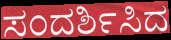
ಸಂದರ್ಶಿಸಿದ